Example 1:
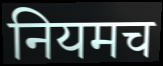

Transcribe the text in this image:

नियमच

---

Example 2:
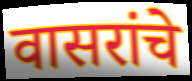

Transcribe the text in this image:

वासरांचे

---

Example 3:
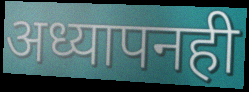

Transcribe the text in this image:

अध्यापनही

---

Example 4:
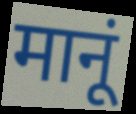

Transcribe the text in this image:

मानूं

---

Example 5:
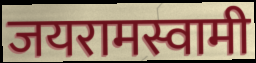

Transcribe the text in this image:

जयरामस्वामी